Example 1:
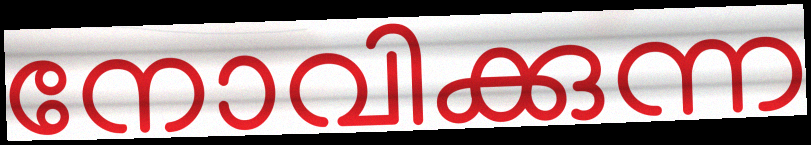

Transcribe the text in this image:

നോവിക്കുന്ന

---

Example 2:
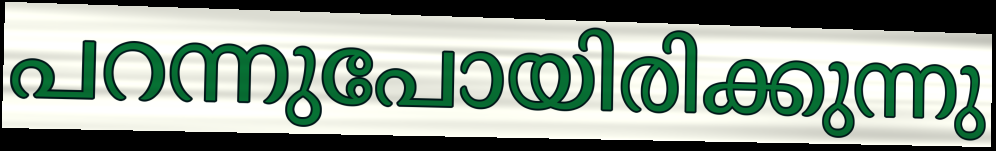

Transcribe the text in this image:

പറന്നുപോയിരിക്കുന്നു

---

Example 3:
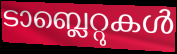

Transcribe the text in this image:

ടാബ്ലെറ്റുകൾ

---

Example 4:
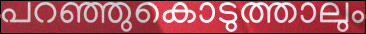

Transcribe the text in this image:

പറഞ്ഞുകൊടുത്താലും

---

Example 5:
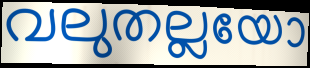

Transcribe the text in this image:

വലുതല്ലയോ